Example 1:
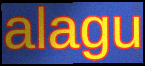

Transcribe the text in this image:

alagu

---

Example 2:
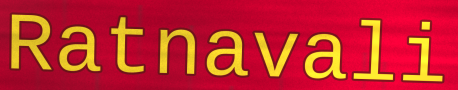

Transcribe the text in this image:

Ratnavali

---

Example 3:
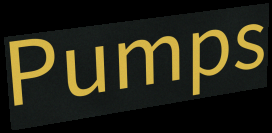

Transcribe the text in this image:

Pumps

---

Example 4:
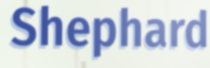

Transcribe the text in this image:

Shephard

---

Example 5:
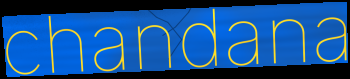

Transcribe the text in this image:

chandana